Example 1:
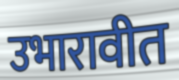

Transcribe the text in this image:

उभारावीत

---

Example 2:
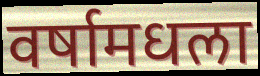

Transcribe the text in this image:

वर्षामधला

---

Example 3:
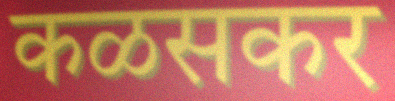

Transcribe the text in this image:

कळसकर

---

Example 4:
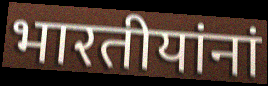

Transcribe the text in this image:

भारतीयांनां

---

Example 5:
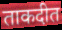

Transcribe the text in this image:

ताकदीत